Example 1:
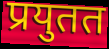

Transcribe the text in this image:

प्रयुतत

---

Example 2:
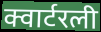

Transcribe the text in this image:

क्वार्टरली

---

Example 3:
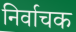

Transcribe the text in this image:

निर्वाचक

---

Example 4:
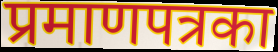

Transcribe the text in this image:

प्रमाणपत्रका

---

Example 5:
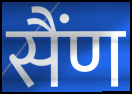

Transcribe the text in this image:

सैंण